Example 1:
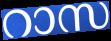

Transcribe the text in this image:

റാസ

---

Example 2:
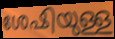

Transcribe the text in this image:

ശേഷിയുള്ള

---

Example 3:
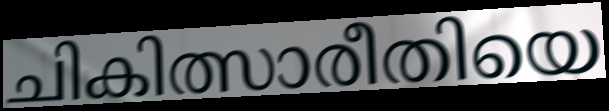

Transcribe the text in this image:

ചികിത്സാരീതിയെ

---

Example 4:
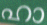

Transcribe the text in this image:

ഹാ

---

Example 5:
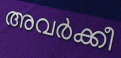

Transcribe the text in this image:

അവർക്കീ